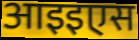
आइइएस